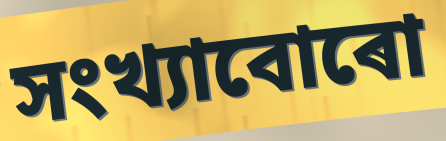
সংখ্যাবোৰো